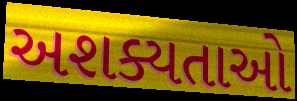
અશક્યતાઓ